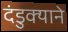
दंडुक्याने